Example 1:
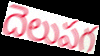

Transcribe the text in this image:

దెలుపగ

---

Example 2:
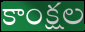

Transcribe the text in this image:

కాంక్షల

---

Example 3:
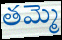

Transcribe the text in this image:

తమ్మె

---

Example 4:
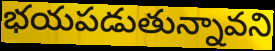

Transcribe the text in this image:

భయపడుతున్నావని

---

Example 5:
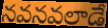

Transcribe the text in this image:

నవనవలాడే